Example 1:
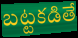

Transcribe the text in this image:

బట్టకడితే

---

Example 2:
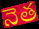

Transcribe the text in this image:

నెత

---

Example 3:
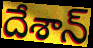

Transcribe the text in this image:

దేశాన్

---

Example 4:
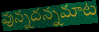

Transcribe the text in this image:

వున్నదన్నమాట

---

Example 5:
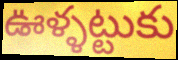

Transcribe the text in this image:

ఊళ్ళట్టుకు